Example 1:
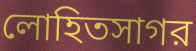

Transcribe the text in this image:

লোহিতসাগর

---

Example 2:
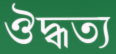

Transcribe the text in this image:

ঔদ্ধত্য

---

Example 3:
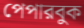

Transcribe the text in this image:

পেপারবুক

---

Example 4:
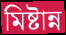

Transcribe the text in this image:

মিষ্টান্ন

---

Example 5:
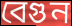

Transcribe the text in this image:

বেগুন